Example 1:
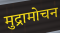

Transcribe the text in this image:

मुद्रामोचन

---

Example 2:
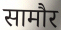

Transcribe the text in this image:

सामौर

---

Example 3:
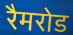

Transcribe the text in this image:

रैमरोड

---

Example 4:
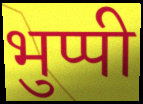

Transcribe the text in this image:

भुप्पी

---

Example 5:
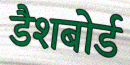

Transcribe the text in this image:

डैशबोर्ड